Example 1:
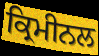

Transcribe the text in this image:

ਕ੍ਰਿਮੀਨਲ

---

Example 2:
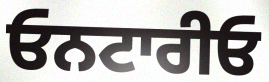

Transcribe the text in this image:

ਓਨਟਾਰੀਓ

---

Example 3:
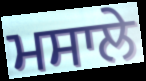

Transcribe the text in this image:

ਮਸਾਲੇ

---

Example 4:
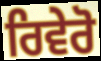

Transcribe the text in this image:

ਰਿਵੇਰੋ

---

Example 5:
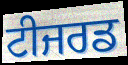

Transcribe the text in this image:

ਟੀਜਰਡ